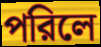
পরিলে